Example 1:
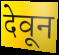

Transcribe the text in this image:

देवून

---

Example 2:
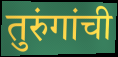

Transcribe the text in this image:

तुरुंगांची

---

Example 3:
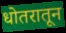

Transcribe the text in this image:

धोतरातून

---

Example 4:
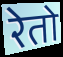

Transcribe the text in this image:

रेतो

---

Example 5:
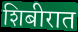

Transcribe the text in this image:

शिबीरात